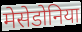
मेसेडोनिया